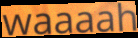
waaaah